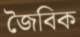
জৈবিক